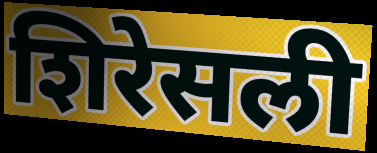
शिरेसली